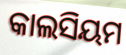
କାଲସିୟମ